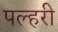
पल्हरी